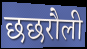
छछरौली